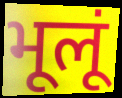
भूलूं